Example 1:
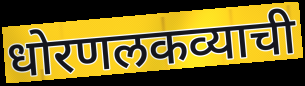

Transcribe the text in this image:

धोरणलकव्याची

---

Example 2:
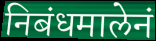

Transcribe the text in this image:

निबंधमालेनं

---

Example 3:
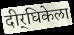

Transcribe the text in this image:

दीर्घिकेला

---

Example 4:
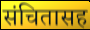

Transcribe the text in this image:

संचितासह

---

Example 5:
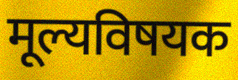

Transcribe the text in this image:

मूल्यविषयक